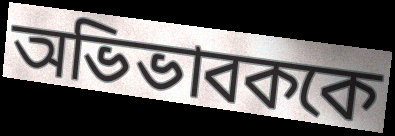
অভিভাবককে